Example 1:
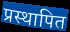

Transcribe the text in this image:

प्रस्थापित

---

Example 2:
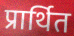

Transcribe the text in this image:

प्रार्थित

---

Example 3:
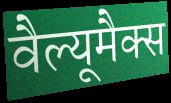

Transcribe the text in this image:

वैल्यूमैक्स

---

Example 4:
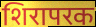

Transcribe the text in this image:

शिरापरक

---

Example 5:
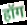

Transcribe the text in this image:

हॉग